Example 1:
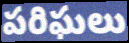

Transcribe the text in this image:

పరిఘలు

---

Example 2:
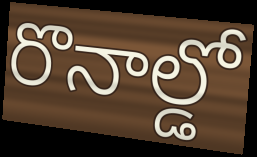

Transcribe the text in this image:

రొనాల్డో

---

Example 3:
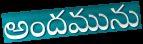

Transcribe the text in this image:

అందమును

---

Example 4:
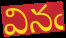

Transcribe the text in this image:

వినఁ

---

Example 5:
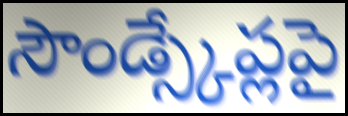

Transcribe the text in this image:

సౌండ్స్కేప్లపై